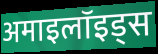
अमाइलॉइड्स